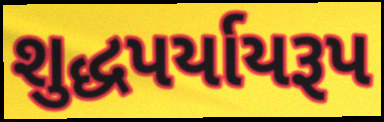
શુદ્ધપર્યાયરૂપ